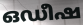
ഒഡീഷ